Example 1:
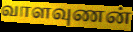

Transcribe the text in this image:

வாளவுணன்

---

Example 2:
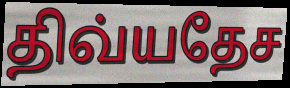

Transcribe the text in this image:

திவ்யதேச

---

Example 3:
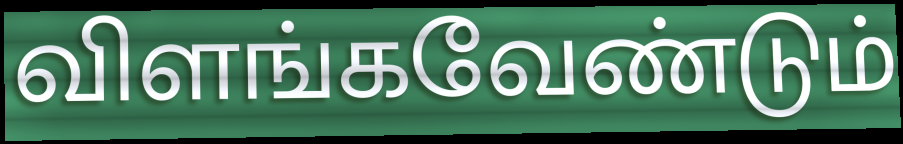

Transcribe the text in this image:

விளங்கவேண்டும்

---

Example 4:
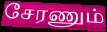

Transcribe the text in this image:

சேரணும்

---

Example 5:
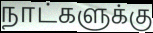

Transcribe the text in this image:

நாட்களுக்கு